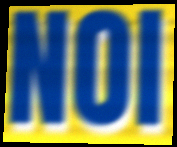
NOI